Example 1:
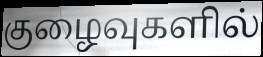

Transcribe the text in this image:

குழைவுகளில்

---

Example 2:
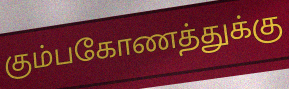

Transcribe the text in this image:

கும்பகோணத்துக்கு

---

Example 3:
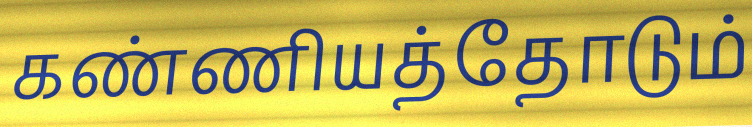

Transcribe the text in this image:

கண்ணியத்தோடும்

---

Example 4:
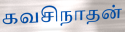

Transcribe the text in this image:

கவசிநாதன்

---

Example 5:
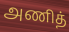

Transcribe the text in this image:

அணித்